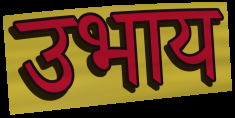
उभाय